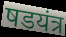
षडयंत्र